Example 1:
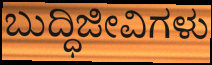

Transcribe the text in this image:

ಬುದ್ಧಿಜೀವಿಗಳು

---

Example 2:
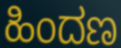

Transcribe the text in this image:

ಹಿಂದಣ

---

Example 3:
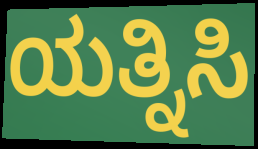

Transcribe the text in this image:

ಯತ್ನಿಸಿ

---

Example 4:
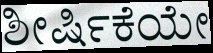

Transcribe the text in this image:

ಶೀರ್ಷಿಕೆಯೇ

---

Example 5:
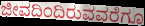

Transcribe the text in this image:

ಜೀವದಿಂದಿರುವವರೆಗೂ